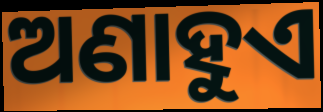
ଅଣାହୁଏ